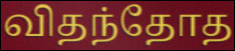
விதந்தோத